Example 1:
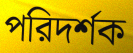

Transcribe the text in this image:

পরিদর্শক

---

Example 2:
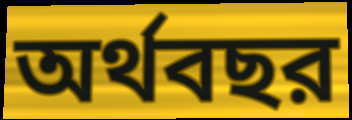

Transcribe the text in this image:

অর্থবছর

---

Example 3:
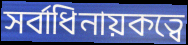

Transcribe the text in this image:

সর্বাধিনায়কত্বে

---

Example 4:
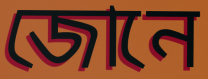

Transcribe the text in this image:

জোনে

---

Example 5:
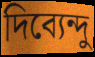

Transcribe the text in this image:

দিব্যেন্দু